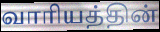
வாரியத்தின்